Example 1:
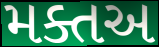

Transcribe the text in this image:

મક્તઅ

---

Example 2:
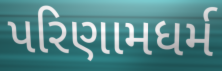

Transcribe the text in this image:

પરિણામધર્મ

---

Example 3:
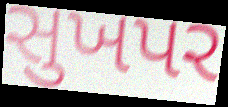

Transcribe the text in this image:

સુખપર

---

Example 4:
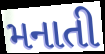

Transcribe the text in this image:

મનાતી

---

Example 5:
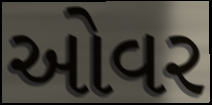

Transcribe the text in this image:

ઓવર